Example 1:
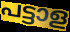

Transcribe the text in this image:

പട്ടാള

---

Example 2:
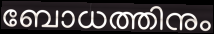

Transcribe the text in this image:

ബോധത്തിനും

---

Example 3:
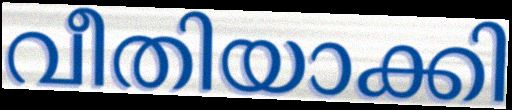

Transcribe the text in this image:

വീതിയാക്കി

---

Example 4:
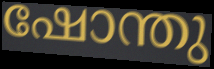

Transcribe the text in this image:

ഷോന്തു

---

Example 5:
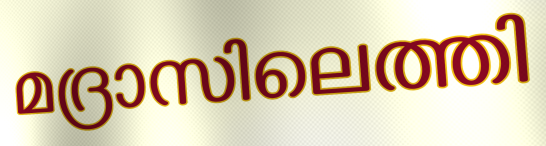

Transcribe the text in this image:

മദ്രാസിലെത്തി